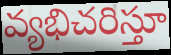
వ్యభిచరిస్తూ